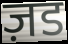
ज़ड